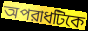
অপরাধটিকে